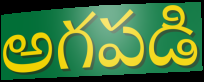
అగపడి